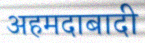
अहमदाबादी